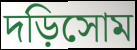
দড়িসোম